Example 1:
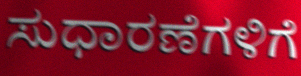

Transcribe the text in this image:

ಸುಧಾರಣೆಗಳಿಗೆ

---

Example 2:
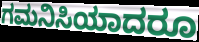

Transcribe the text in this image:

ಗಮನಿಸಿಯಾದರೂ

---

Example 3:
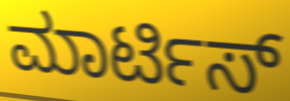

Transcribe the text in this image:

ಮಾರ್ಟಿಸ್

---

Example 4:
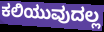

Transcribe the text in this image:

ಕಲಿಯುವುದಲ್ಲ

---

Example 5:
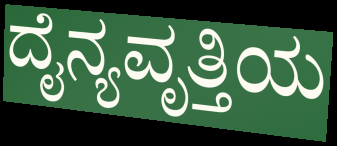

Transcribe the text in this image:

ದೈನ್ಯವೃತ್ತಿಯ